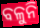
ବଳୁନି